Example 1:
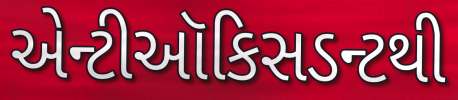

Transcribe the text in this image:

એન્ટીઑકિસડન્ટથી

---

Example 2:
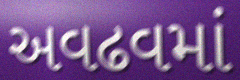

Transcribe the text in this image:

અવઢવમાં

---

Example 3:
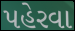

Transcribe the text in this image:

પહેરવા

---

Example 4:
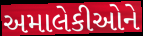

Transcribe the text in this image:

અમાલેકીઓને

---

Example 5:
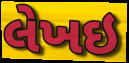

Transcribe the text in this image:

લેખઇ